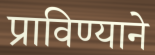
प्राविण्याने